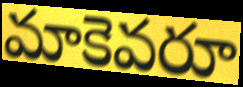
మాకెవరూ